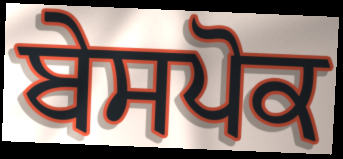
ਬੇਸਪੋਕ